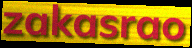
zakasrao